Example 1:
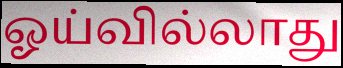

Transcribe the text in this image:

ஓய்வில்லாது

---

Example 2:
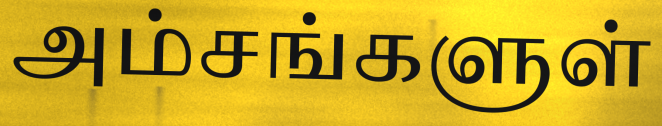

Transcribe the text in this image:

அம்சங்களுள்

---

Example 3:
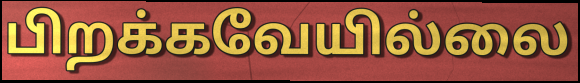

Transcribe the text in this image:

பிறக்கவேயில்லை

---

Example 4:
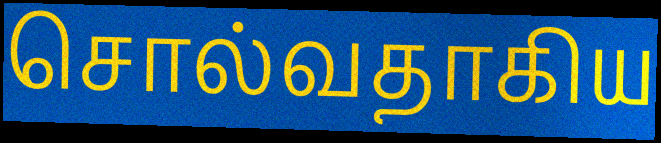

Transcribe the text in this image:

சொல்வதாகிய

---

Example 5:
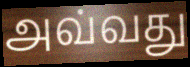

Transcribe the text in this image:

அவ்வது